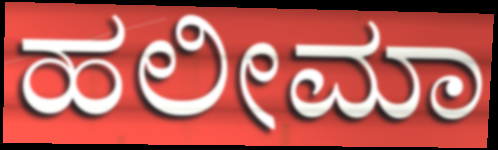
ಹಲೀಮಾ